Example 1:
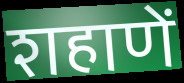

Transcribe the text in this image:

शहाणें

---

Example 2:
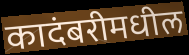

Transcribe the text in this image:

कादंबरीमधील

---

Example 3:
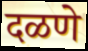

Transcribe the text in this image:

दळणे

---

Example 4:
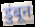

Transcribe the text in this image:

डुंबून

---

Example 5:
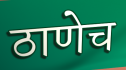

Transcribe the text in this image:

ठाणेच